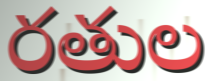
రతుల